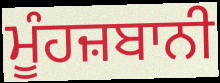
ਮੂੰਹਜ਼ਬਾਨੀ